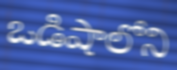
ఒడిషాలోని